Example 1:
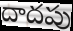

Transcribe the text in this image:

దాదపు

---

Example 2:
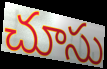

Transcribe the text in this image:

చూసు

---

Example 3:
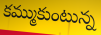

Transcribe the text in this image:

కమ్ముకుంటున్న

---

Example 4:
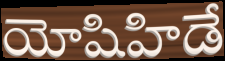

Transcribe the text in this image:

యోషిహిడే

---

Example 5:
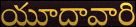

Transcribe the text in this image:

యూదావారి